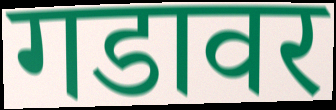
गडावर